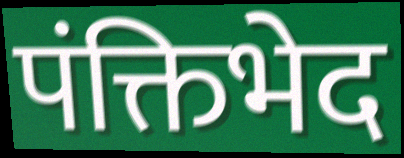
पंक्तिभेद